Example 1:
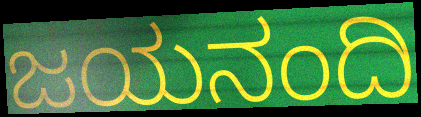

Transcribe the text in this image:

ಜಯನಂದಿ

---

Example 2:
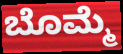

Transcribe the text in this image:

ಬೊಮ್ಮೆ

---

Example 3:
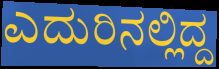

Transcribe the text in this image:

ಎದುರಿನಲ್ಲಿದ್ದ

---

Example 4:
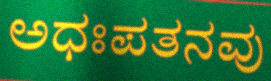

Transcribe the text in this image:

ಅಧಃಪತನವು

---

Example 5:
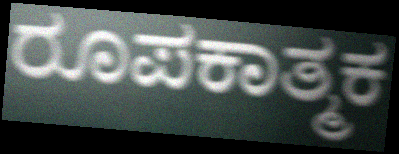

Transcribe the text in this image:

ರೂಪಕಾತ್ಮಕ